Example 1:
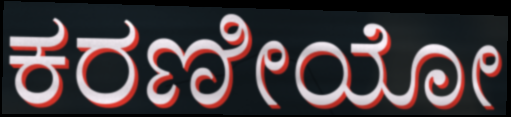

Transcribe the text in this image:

ಕರಣೀಯೋ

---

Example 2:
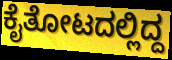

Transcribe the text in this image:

ಕೈತೋಟದಲ್ಲಿದ್ದ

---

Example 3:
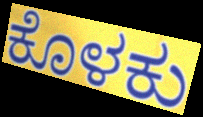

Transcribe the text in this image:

ಕೊಳಕು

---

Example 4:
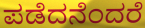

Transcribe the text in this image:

ಪಡೆದನೆಂದರೆ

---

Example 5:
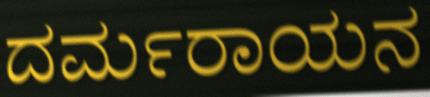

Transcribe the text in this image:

ದರ್ಮರಾಯನ